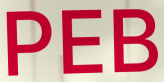
PEB